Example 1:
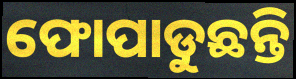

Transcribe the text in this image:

ଫୋପାଡୁଛନ୍ତି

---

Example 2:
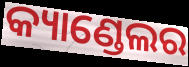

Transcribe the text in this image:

କ୍ୟାଣ୍ଡେଲର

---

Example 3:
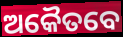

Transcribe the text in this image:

ଅକୈତବେ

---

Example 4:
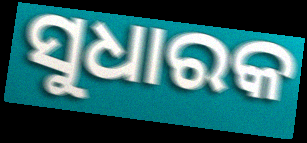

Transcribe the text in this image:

ସୁଧାରକ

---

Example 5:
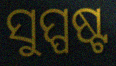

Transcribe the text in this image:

ସୁପ୍ପଷ୍ଟ